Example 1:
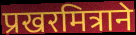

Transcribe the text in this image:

प्रखरमित्राने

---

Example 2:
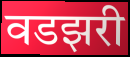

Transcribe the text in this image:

वडझरी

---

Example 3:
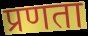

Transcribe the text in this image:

प्रणता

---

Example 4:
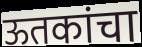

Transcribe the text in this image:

ऊतकांचा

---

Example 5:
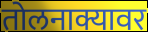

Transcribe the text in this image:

तोलनाक्यावर